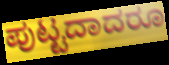
ಪುಟ್ಟದಾದರೂ